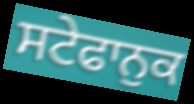
ਸਟੇਫਾਨੁਕ